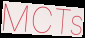
MCTs